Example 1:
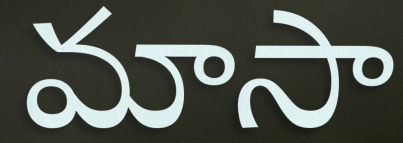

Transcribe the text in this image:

మాసా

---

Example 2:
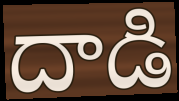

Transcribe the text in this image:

దాడి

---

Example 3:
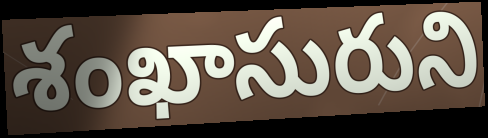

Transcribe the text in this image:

శంఖాసురుని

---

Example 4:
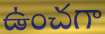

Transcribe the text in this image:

ఉంచగా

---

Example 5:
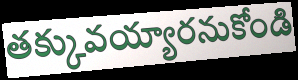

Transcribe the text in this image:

తక్కువయ్యారనుకోండి